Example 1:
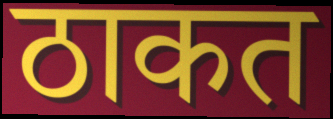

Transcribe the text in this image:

ठाकत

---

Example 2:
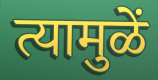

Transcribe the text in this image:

त्यामुळें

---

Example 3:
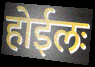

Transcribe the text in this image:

होईलः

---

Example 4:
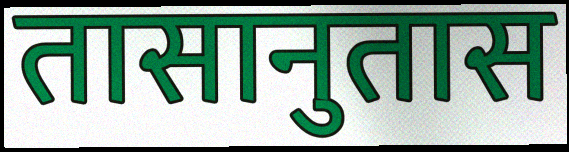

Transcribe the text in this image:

तासानुतास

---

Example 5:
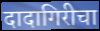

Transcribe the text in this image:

दादागिरीचा